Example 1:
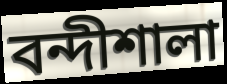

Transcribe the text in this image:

বন্দীশালা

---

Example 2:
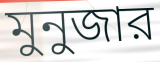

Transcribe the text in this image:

মুনুজার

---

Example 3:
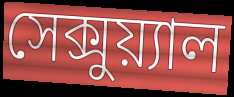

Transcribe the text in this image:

সেক্সুয়্যাল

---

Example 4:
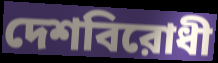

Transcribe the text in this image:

দেশবিরোধী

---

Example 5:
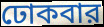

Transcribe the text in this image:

ঢোকবার